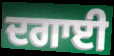
ਦਗਾਈ